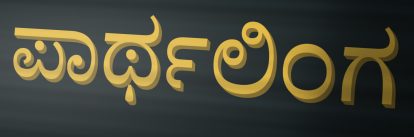
ಪಾರ್ಥಲಿಂಗ